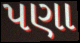
પણા